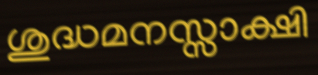
ശുദ്ധമനസ്സാക്ഷി